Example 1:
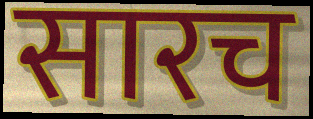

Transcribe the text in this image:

सारच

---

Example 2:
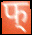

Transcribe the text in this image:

फ्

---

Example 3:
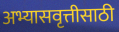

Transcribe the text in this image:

अभ्यासवृत्तीसाठी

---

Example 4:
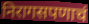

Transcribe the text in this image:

निरागसपणाचं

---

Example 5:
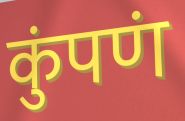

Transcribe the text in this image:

कुंपणं